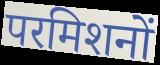
परमिशनों